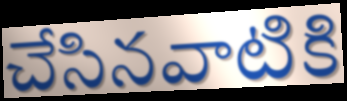
చేసినవాటికి